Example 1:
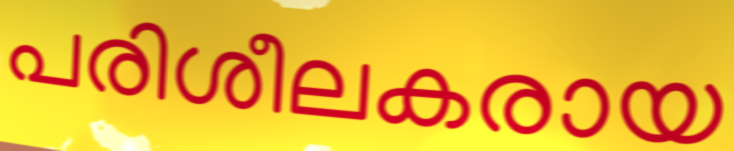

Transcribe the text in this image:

പരിശീലകരായ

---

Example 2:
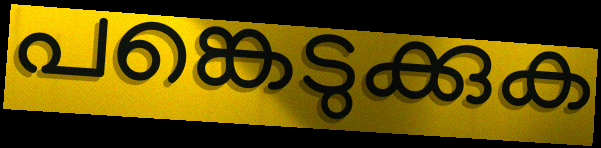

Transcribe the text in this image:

പങ്കെടുക്കുക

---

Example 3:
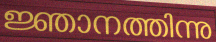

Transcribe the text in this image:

ജ്ഞാനത്തിന്നു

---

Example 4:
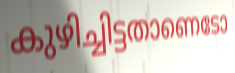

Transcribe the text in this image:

കുഴിച്ചിട്ടതാണെടോ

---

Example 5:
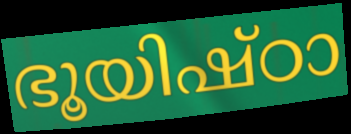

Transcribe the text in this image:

ഭൂയിഷ്ഠാ